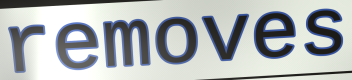
removes